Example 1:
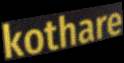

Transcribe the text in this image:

kothare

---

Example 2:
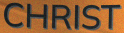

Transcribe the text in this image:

CHRIST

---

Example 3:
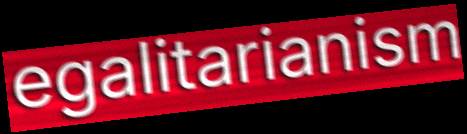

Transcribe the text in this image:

egalitarianism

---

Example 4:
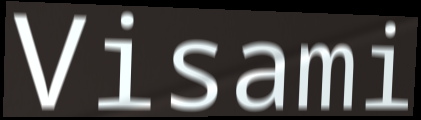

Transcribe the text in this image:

Visami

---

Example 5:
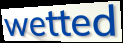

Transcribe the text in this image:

wetted